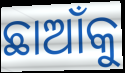
ଛାଆଁକୁ